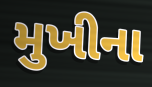
મુખીના